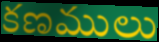
కణములు